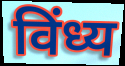
विंध्य